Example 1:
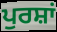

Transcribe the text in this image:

ਪੁਰਸ਼ਾਂ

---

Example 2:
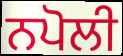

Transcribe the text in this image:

ਨਪੋਲੀ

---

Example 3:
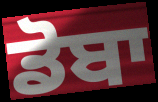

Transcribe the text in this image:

ਡੋਬਾ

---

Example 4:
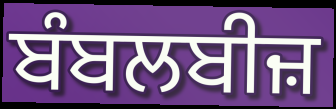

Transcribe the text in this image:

ਬੰਬਲਬੀਜ਼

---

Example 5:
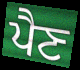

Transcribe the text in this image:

ਪੈਣ